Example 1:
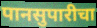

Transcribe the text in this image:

पानसुपारीचा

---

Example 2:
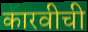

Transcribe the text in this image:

कारवीची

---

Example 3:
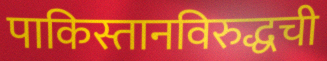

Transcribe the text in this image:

पाकिस्तानविरुद्धची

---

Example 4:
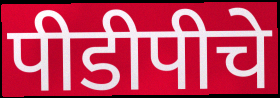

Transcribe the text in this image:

पीडीपीचे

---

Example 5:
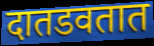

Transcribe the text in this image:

दातडवतात